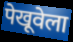
पेखूवेला